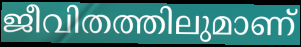
ജീവിതത്തിലുമാണ്